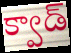
క్వాడ్